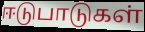
ஈடுபாடுகள்